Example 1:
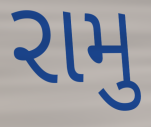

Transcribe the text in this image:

રામુ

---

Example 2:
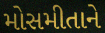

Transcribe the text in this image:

મોસમીતાને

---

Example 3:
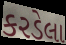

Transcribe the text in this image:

કરડેલા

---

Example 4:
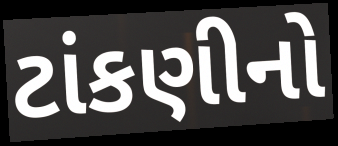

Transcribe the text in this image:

ટાંકણીનો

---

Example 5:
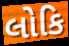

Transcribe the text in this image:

લોકિ